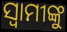
ସ୍ୱାମୀଙ୍କୁ